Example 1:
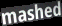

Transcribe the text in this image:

mashed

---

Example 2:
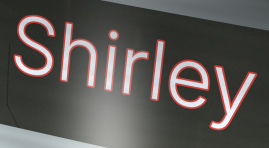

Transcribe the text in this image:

Shirley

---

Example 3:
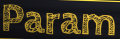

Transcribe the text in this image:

Param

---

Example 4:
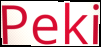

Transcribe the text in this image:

Peki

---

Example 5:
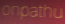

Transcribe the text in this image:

onpathu